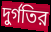
দুর্গতির